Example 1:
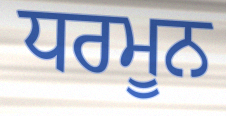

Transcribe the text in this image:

ਧਰਮੂਨ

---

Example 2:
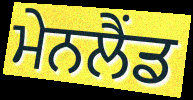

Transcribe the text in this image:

ਮੇਨਲੈਂਡ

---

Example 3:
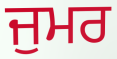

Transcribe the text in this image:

ਜੁਮਰ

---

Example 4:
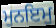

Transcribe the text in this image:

ਮੁਨਇਮੁ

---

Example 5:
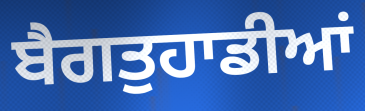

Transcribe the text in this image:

ਬੈਗਤੁਹਾਡੀਆਂ